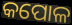
କପୋଳ